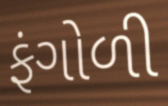
ફંગોળી